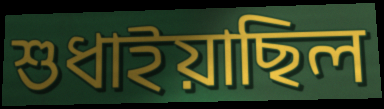
শুধাইয়াছিল